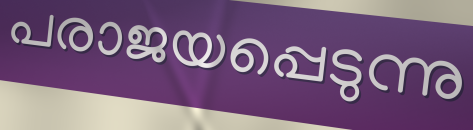
പരാജയപ്പെടുന്നു